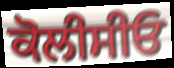
ਕੋਲੀਸੀਓ